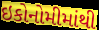
ઇકોનોમીમાંથી